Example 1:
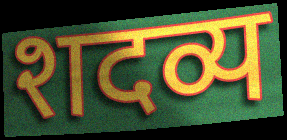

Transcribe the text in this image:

शदव्य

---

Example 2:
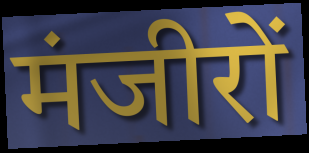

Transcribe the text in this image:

मंजीरों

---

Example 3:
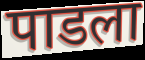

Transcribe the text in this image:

पाडला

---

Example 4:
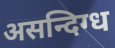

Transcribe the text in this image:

असन्दिग्ध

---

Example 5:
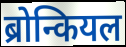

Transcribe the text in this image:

ब्रोन्कियल